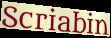
Scriabin